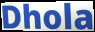
Dhola